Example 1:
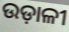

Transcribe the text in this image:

ଉଡ଼ାଳୀ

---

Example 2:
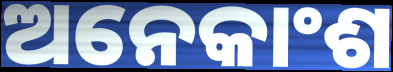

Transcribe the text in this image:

ଅନେକାଂଶ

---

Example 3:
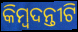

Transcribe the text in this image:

କିମ୍ୱଦନ୍ତୀଟି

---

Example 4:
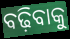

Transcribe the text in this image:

ବଢ଼ିବାକୁ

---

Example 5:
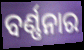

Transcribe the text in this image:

ବର୍ଣ୍ଣନାର